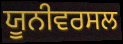
ਯੂਨੀਵਰਸਲ